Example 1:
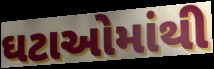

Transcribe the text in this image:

ઘટાઓમાંથી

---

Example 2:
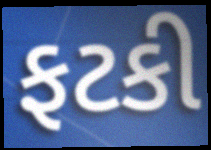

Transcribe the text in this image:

ફટકી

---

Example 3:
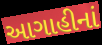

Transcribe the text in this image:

આગાહીનાં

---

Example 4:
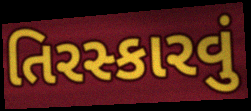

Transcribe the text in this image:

તિરસ્કારવું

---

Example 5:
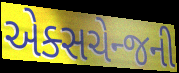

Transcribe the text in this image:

એક્સચેન્જની